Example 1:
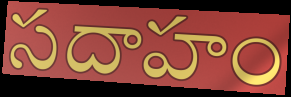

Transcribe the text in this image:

సదాహం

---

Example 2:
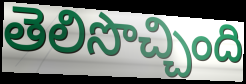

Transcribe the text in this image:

తెలిసొచ్చింది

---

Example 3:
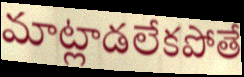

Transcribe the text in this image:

మాట్లాడలేకపోతే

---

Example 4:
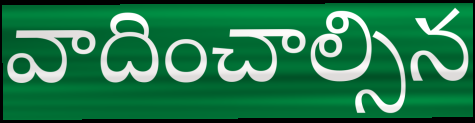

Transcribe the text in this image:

వాదించాల్సిన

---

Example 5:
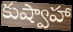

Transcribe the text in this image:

కుష్వాహా